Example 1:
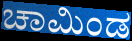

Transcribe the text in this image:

ಚಾಮಿಂಡ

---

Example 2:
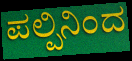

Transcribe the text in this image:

ಪಲ್ಪಿನಿಂದ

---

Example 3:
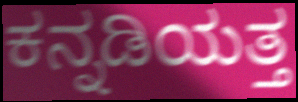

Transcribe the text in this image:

ಕನ್ನಡಿಯತ್ತ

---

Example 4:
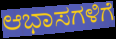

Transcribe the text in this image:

ಆಭಾಸಗಳಿಗೆ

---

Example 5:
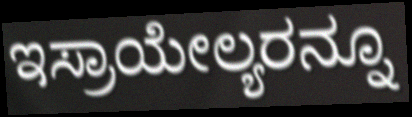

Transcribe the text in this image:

ಇಸ್ರಾಯೇಲ್ಯರನ್ನೂ